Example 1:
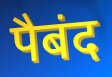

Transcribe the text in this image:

पैबंद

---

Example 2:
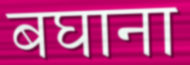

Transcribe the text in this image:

बघाना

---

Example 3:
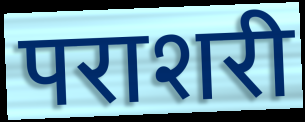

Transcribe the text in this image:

पराशरी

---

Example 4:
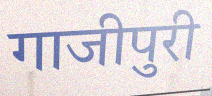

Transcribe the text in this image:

गाजीपुरी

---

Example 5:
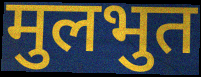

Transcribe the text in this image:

मुलभुत